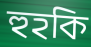
হুহকি